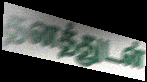
தனத்துடன்